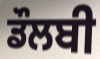
ਡੌਲਬੀ